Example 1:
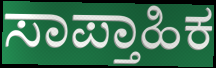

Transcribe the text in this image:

ಸಾಪ್ತಾಹಿಕ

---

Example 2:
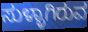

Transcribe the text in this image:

ಸುಳ್ಳಾಗಿರುವ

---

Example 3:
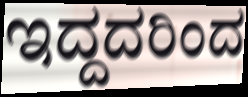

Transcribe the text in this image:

ಇದ್ದದರಿಂದ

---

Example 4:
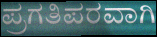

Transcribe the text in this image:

ಪ್ರಗತಿಪರವಾಗಿ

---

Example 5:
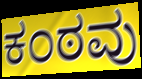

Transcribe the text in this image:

ಕಂಠವು